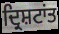
ਦ੍ਰਿਸ਼ਟਾਂਤ